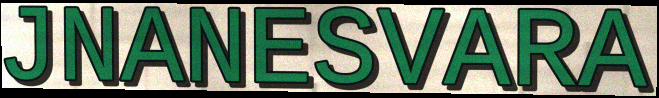
JNANESVARA